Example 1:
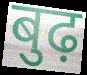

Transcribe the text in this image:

बुढ़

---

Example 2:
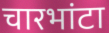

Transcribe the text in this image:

चारभांटा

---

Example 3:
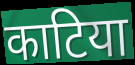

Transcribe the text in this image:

काटिया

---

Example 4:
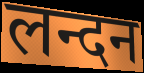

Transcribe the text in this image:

लन्दन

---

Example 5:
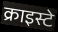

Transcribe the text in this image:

क्राइस्टे